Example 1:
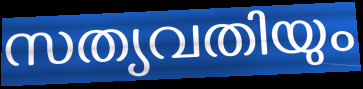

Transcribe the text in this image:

സത്യവതിയും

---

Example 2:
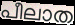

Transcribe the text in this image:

പീലാത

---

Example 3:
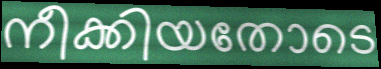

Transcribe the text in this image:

നീക്കിയതോടെ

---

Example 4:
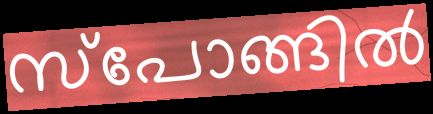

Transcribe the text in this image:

സ്പോങ്ങിൽ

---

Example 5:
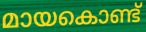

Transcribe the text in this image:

മായകൊണ്ട്